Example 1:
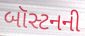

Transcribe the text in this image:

બૉસ્ટનની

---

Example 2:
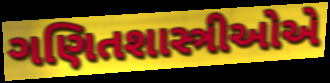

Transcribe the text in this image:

ગણિતશાસ્ત્રીઓએ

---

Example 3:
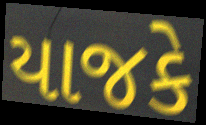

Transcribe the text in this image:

યાજકે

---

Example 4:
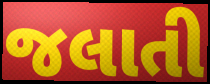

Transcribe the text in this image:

જલાતી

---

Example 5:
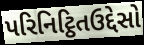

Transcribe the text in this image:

પરિનિટ્ઠિતઉદ્દેસો